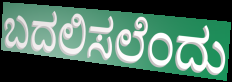
ಬದಲಿಸಲೆಂದು